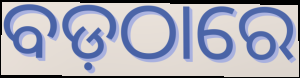
ବଡ଼ଠାରେ